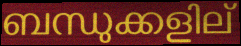
ബന്ധുക്കളില്